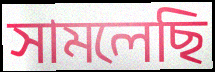
সামলেছি